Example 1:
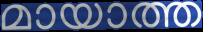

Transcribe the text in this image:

മായാത്ത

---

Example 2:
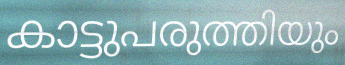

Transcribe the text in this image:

കാട്ടുപരുത്തിയും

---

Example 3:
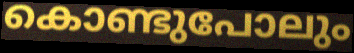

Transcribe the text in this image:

കൊണ്ടുപോലും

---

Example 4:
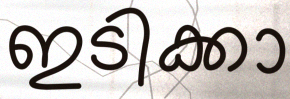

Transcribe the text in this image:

ഇടിക്കാ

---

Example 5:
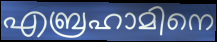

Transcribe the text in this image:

എബ്രഹാമിനെ